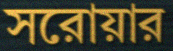
সরোয়ার